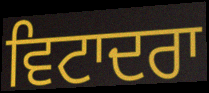
ਵਿਟਾਦਰਾ